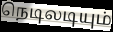
நெடிலடியும்